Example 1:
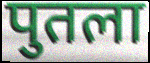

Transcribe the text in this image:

पुतला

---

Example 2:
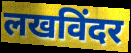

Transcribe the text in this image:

लखविंदर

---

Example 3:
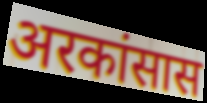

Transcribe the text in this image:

अरकांसास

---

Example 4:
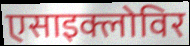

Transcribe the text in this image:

एसाइक्लोविर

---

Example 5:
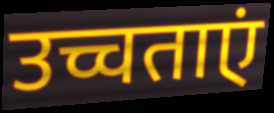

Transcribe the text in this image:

उच्चताएं